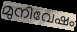
മുനിവേഷം